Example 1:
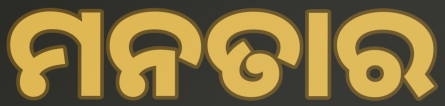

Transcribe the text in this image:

ମନତାର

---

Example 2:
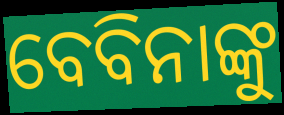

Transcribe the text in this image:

ବେବିନାଙ୍କୁ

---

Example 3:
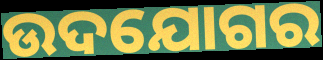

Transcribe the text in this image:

ଉଦଯୋଗର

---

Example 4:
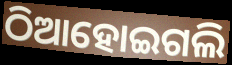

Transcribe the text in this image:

ଠିଆହୋଇଗଲି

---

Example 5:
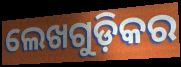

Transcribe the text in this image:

ଲେଖଗୁଡ଼ିକର